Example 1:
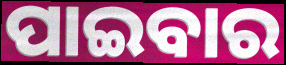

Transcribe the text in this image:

ପାଇବାର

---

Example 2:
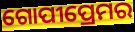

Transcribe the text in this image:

ଗୋପୀପ୍ରେମର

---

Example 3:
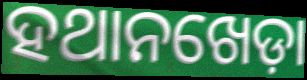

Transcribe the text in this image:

ହଥାନଖେଡ଼ା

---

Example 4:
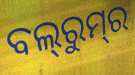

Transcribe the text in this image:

ବଲ୍‍ରୁମ୍‌ର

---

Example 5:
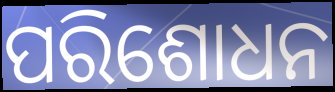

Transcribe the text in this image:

ପରିଶୋଧନ